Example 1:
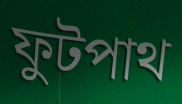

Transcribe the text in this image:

ফুটপাথ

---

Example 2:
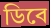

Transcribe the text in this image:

ডিবে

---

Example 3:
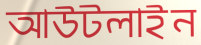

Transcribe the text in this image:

আউটলাইন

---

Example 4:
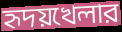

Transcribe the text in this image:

হৃদয়খেলার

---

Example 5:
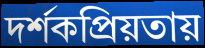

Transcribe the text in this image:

দর্শকপ্রিয়তায়